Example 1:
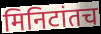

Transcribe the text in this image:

मिनिटांतच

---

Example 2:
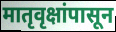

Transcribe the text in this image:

मातृवृक्षांपासून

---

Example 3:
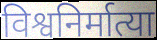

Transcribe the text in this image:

विश्वनिर्मात्या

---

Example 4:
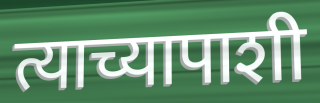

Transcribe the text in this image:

त्याच्यापाशी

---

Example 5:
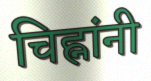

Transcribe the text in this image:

चिह्नांनी